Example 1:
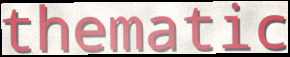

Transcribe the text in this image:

thematic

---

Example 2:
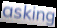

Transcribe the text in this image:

asking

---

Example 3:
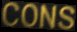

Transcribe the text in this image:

CONS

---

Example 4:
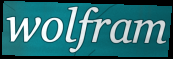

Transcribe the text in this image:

wolfram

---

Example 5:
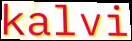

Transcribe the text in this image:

kalvi